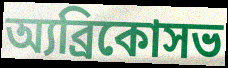
অ্যব্রিকোসভ